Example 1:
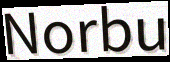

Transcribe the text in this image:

Norbu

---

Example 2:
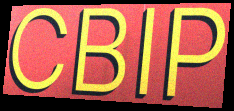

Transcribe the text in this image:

CBIP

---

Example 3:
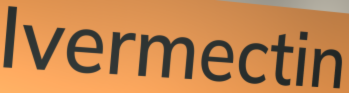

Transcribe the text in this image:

Ivermectin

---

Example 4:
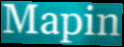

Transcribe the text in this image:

Mapin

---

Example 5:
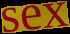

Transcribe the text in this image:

sex